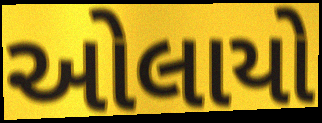
ઓલાયો